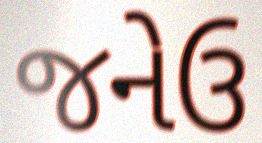
જનેઉ